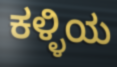
ಕಳ್ಳಿಯ